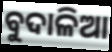
ବୁଦାଳିଆ